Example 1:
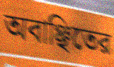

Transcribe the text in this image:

অবাঞ্ছিতের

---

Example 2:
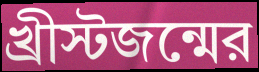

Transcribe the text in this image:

খ্রীস্টজন্মের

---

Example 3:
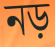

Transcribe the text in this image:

নড়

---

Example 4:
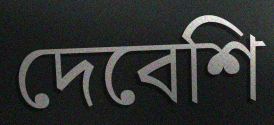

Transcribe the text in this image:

দেবেশি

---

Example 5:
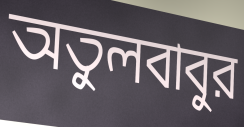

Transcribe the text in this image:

অতুলবাবুর